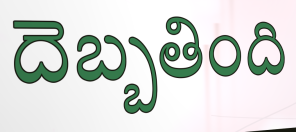
దెబ్బతింది